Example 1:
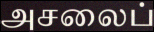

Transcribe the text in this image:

அசலைப்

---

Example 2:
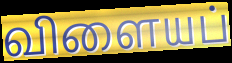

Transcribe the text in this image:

விளையப்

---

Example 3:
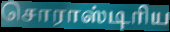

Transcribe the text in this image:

சொராஸ்டிரிய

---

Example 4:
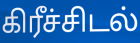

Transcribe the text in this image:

கிரீச்சிடல்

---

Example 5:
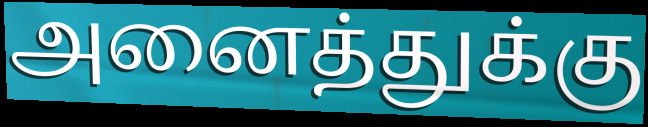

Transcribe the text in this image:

அனைத்துக்கு